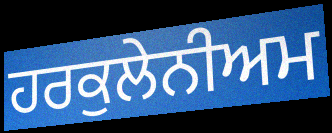
ਹਰਕੁਲੇਨੀਅਮ